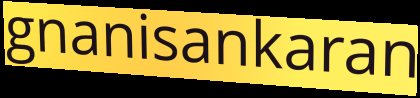
gnanisankaran